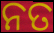
ନତ